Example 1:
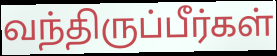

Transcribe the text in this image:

வந்திருப்பீர்கள்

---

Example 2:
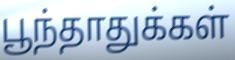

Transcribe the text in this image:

பூந்தாதுக்கள்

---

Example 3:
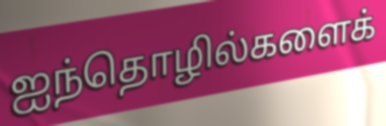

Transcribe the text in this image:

ஐந்தொழில்களைக்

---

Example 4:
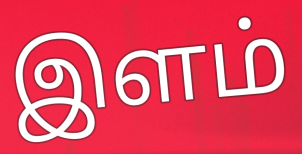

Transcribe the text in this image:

இளம்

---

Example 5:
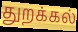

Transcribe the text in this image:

துறக்கல்